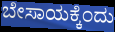
ಬೇಸಾಯಕ್ಕೆಂದು